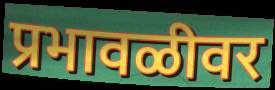
प्रभावळीवर